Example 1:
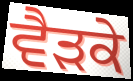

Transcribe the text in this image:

ਵੈੜਕੇ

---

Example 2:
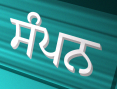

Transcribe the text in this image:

ਸੰਪਨ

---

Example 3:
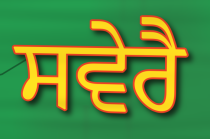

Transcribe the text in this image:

ਸਵੇਰੈ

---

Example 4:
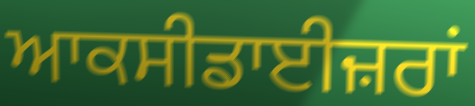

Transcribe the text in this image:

ਆਕਸੀਡਾਈਜ਼ਰਾਂ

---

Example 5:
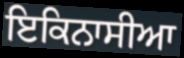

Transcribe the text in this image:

ਇਕਿਨਾਸੀਆ